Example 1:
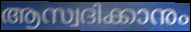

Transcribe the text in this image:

ആസ്വദിക്കാനും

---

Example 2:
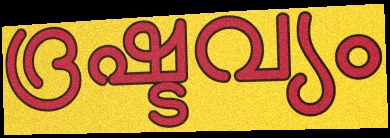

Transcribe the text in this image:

ദ്രഷ്ടവ്യം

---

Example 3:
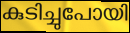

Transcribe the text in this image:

കുടിച്ചുപോയി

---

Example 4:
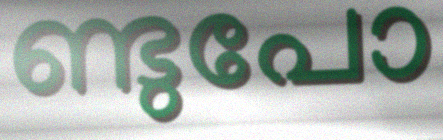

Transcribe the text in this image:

ണ്ടുപോ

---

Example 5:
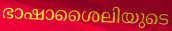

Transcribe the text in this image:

ഭാഷാശൈലിയുടെ